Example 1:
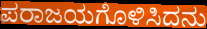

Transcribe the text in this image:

ಪರಾಜಯಗೊಳಿಸಿದನು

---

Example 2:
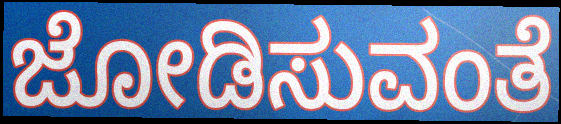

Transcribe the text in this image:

ಜೋಡಿಸುವಂತೆ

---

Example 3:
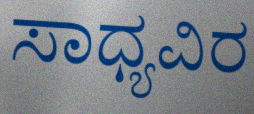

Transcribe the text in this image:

ಸಾಧ್ಯವಿರ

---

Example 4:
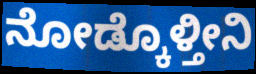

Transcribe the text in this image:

ನೋಡ್ಕೊಳ್ತೀನಿ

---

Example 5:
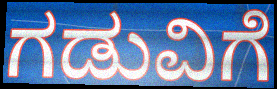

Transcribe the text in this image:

ಗಡುವಿಗೆ